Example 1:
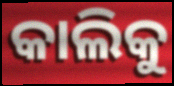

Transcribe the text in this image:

କାଲିକୁ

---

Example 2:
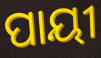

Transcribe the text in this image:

ପାୟୀ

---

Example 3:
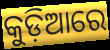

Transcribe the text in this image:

କୁଡ଼ିଆରେ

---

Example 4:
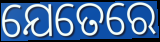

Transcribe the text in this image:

ଯେତେରେ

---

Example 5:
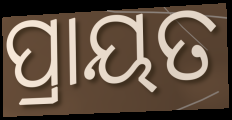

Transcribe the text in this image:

ପ୍ରାୟତ